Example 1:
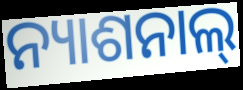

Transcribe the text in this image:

ନ୍ୟାଶନାଲ୍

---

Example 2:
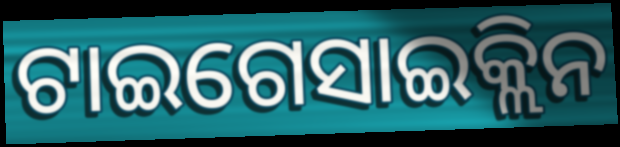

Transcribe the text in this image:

ଟାଇଗେସାଇକ୍ଲିନ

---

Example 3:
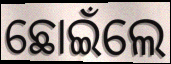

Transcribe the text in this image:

ଛୋଇଁଲେ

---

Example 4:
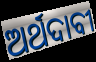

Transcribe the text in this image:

ଅର୍ଥଦାବୀ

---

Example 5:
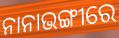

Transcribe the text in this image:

ନାନାଭଙ୍ଗୀରେ